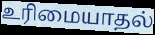
உரிமையாதல்